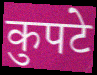
कुपटे